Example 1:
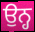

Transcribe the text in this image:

ਉਨ੍ਹ੍ਹ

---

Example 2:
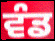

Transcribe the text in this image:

ਵੰਡ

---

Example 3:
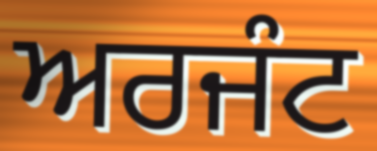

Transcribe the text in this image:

ਅਰਜੰਟ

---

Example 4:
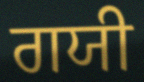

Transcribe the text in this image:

ਗਯੀ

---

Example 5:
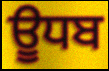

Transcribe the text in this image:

ਊਧਬ